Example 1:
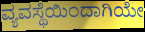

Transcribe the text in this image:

ವ್ಯವಸ್ಥೆಯಿಂದಾಗಿಯೇ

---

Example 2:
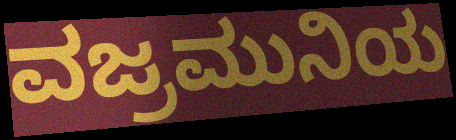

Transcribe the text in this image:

ವಜ್ರಮುನಿಯ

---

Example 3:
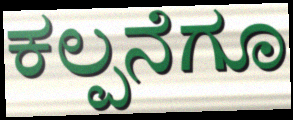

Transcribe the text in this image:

ಕಲ್ಪನೆಗೂ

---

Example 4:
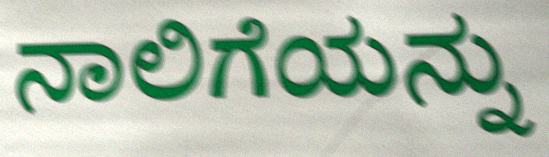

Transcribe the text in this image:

ನಾಲಿಗೆಯನ್ನು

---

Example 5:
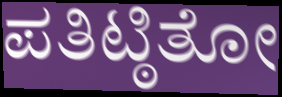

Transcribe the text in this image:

ಪತಿಟ್ಠಿತೋ